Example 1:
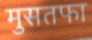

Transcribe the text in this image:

मुसतफा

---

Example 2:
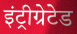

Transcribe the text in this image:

इंट्रीग्रेटेड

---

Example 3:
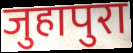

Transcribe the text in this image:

जुहापुरा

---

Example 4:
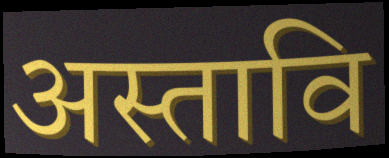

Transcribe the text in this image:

अस्तावि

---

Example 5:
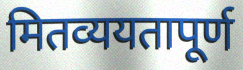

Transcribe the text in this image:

मितव्ययतापूर्ण